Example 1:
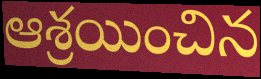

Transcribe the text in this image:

ఆశ్రయించిన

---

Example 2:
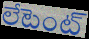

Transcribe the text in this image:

లేటెంట్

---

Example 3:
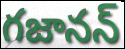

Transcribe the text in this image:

గజానన్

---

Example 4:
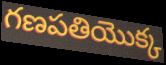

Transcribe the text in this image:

గణపతియొక్క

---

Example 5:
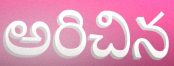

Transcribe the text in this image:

అరిచిన